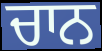
ਚਾਨ